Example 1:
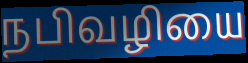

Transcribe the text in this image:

நபிவழியை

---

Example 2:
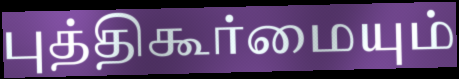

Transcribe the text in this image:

புத்திகூர்மையும்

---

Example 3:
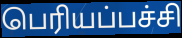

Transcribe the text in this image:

பெரியப்பச்சி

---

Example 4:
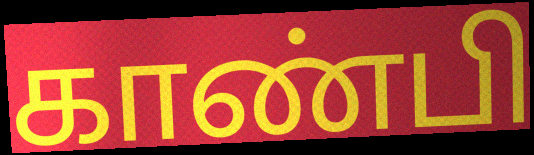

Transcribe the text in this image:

காண்பி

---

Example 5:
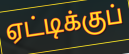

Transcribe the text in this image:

ஏட்டிக்குப்